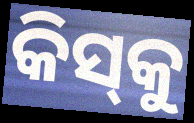
କିସ୍‌କୁ